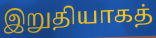
இறுதியாகத்